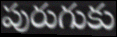
పురుగుకు